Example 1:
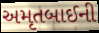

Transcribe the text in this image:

અમૃતબાઈની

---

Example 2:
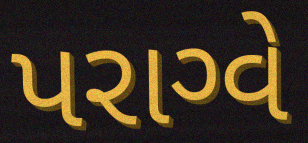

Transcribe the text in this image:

પરાગ્વે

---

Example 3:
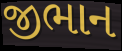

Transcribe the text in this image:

જીભાન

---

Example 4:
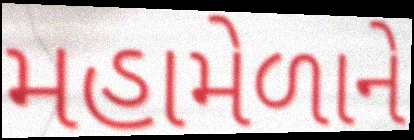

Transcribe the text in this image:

મહામેળાને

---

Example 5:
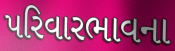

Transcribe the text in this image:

પરિવારભાવના